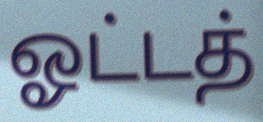
ஓட்டத்